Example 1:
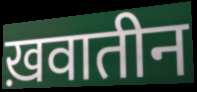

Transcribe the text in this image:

ख़वातीन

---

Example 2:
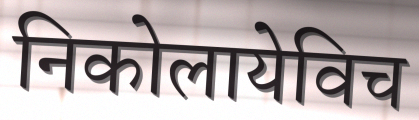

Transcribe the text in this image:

निकोलायेविच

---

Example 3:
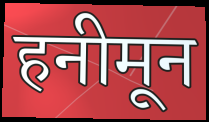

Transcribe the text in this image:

हनीमून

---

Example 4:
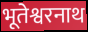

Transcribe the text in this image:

भूतेश्वरनाथ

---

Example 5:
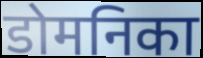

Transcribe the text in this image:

डोमनिका